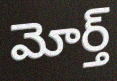
మోర్త్